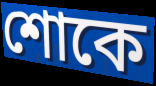
শোকে